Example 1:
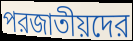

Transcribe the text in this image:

পরজাতীয়দের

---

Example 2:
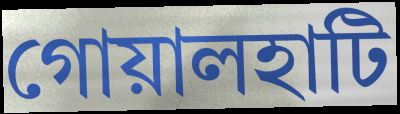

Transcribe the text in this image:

গোয়ালহাটি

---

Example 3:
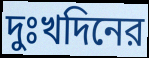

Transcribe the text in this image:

দুঃখদিনের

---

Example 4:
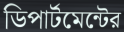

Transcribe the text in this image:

ডিপার্টমেন্টের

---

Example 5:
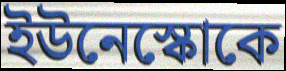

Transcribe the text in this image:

ইউনেস্কোকে